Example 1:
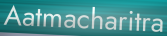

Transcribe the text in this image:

Aatmacharitra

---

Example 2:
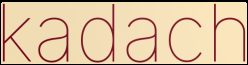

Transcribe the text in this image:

kadach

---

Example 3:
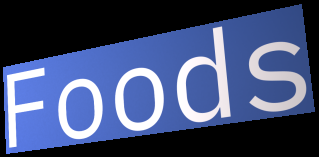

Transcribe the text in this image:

Foods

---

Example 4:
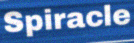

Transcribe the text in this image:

Spiracle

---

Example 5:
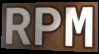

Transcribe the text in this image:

RPM